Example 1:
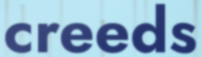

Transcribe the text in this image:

creeds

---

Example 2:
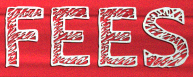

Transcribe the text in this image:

FEES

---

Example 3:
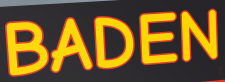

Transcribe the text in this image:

BADEN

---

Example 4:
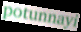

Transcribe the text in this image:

potunnayi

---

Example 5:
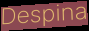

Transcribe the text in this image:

Despina